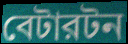
বেটারটন